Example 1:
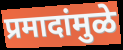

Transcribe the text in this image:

प्रमादांमुळे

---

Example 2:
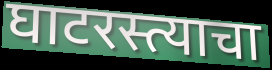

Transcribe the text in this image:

घाटरस्त्याचा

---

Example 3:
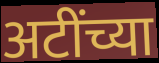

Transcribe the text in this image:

अटींच्या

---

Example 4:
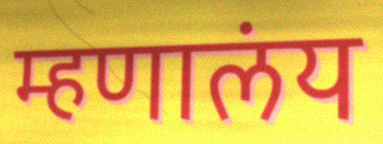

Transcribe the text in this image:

म्हणालंय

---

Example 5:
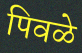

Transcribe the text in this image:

पिवळे